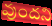
వుందని